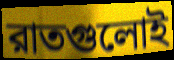
রাতগুলোই